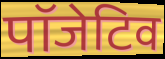
पॉजेटिव